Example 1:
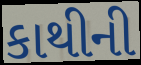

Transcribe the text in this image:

કાથીની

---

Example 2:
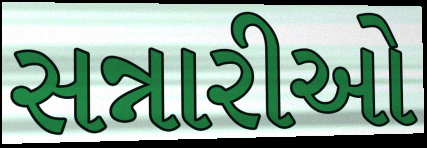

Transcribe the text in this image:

સન્નારીઓ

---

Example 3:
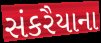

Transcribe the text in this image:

સંકરૈયાના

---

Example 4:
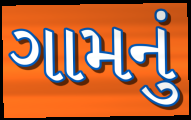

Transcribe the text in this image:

ગામનું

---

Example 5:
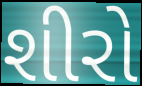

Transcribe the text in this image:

શીરો